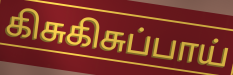
கிசுகிசுப்பாய்